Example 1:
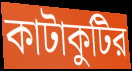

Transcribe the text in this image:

কাটাকুটির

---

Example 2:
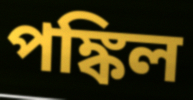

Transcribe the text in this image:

পঙ্কিল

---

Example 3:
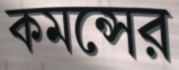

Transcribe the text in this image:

কমন্সের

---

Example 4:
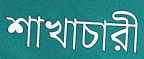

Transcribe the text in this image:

শাখাচারী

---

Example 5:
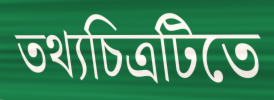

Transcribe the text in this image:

তথ্যচিত্রটিতে